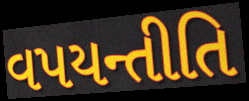
વપયન્તીતિ